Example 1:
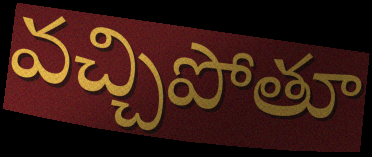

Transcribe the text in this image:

వచ్చిపోతూ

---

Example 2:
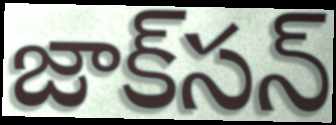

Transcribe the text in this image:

జాక్‌సన్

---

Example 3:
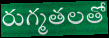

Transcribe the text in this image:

రుగ్మతలతో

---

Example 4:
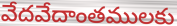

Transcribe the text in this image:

వేదవేదాంతములకు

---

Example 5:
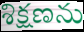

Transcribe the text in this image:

శిక్షణను